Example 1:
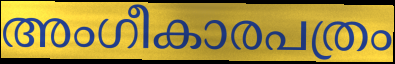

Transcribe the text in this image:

അംഗീകാരപത്രം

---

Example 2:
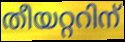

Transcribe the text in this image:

തീയറ്ററിന്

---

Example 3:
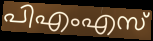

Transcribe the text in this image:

പിഎംഎസ്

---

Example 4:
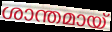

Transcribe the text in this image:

ശാന്തമായ്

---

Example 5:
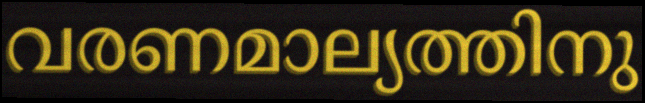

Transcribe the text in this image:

വരണമാല്യത്തിനു